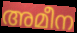
അമീന